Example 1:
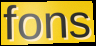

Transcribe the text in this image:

fons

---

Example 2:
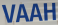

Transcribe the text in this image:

VAAH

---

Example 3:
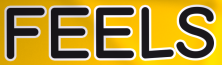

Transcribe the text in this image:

FEELS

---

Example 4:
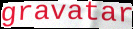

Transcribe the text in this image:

gravatar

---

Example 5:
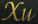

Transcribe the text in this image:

Xu